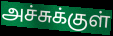
அச்சுக்குள்